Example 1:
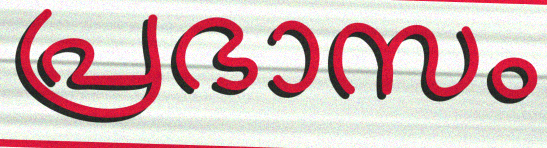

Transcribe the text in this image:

പ്രഭാസം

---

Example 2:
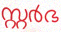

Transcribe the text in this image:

സ്റ്റർഭ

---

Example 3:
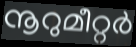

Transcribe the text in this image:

നൂറുമീറ്റർ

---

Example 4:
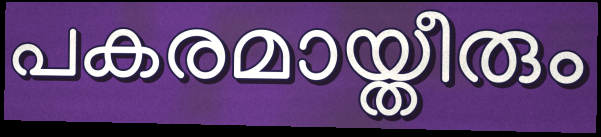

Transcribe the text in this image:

പകരമായ്തീരും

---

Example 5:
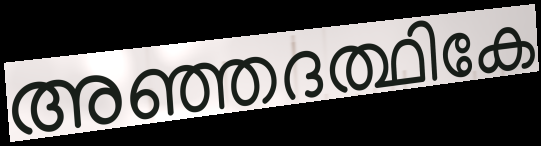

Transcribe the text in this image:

അഞ്ഞദത്ഥികേ